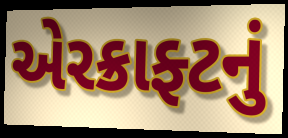
એરક્રાફ્ટનું